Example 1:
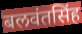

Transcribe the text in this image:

बलवंतसिंह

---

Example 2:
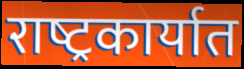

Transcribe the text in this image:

राष्ट्रकार्यात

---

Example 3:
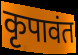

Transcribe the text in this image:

कृपावंत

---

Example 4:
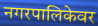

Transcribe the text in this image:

नगरपालिकेवर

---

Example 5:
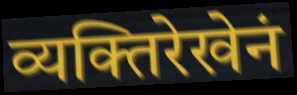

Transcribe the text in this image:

व्यक्तिरेखेनं